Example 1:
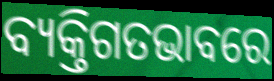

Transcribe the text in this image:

ବ୍ୟକ୍ତିଗତଭାବରେ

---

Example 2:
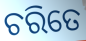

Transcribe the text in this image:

ଚରିତେ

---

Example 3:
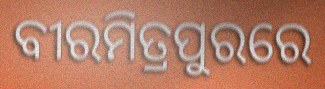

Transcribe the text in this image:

ବୀରମିତ୍ରପୁରରେ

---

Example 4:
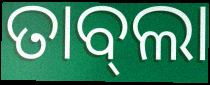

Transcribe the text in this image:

ତାବ୍‌ଲା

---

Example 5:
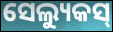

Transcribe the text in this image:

ସେଲ୍ୟୁକସ୍